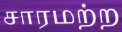
சாரமற்ற